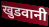
खुडवानी